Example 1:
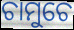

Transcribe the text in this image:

ଚାମୁଚେ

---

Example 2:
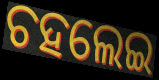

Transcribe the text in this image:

ଚହଲେଇ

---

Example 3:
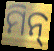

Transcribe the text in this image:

ମିନ୍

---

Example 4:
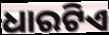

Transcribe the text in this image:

ଧାରଟିଏ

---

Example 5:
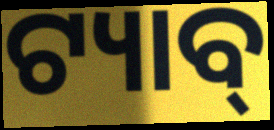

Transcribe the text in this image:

ଟ୍ୟାବ୍